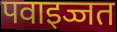
पवाइज्जत